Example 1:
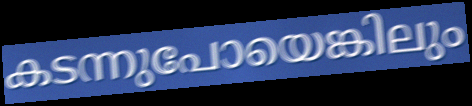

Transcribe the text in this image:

കടന്നുപോയെങ്കിലും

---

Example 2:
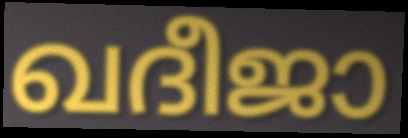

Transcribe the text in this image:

ഖദീജാ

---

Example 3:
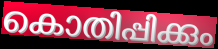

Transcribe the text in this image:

കൊതിപ്പിക്കും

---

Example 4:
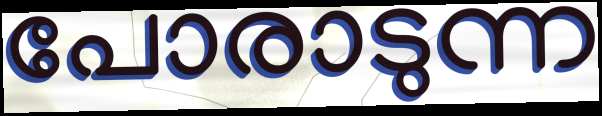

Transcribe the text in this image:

പോരാടുന്ന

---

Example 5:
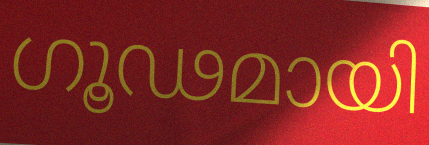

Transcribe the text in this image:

ഗൂഢമായി